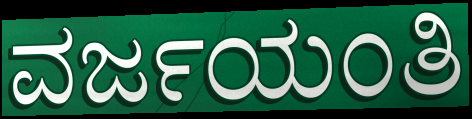
ವರ್ಜಯಂತಿ